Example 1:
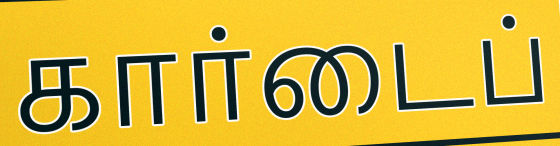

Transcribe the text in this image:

கார்டைப்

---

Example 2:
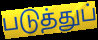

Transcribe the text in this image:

படுத்துப்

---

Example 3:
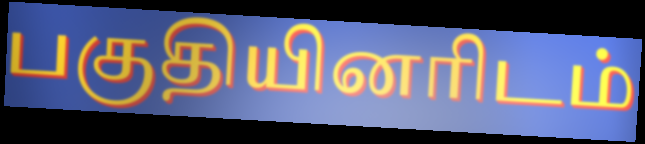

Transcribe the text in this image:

பகுதியினரிடம்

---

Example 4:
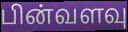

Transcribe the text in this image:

பின்வளவு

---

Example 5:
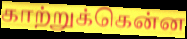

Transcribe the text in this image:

காற்றுக்கென்ன